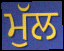
ਮੁੱਲ